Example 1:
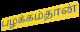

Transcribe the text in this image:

பழக்கம்தான்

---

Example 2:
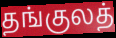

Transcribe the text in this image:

தங்குலத்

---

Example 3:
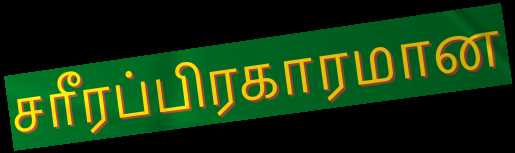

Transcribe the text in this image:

சரீரப்பிரகாரமான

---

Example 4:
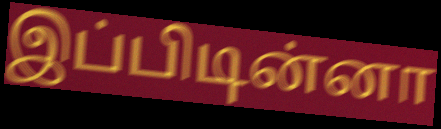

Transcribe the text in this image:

இப்பிடின்னா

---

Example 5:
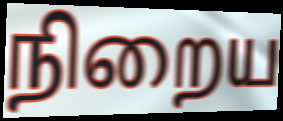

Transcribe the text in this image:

நிறைய